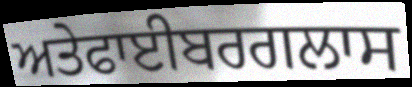
ਅਤੇਫਾਈਬਰਗਲਾਸ